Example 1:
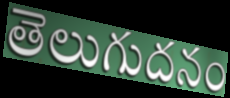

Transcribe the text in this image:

తెలుగుదనం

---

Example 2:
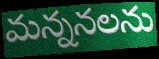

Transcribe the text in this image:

మన్ననలను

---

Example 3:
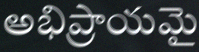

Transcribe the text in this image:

అభిప్రాయమై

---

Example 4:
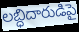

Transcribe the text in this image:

లబ్ధిదారుడిపై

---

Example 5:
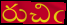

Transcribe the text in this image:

రుచిఁ